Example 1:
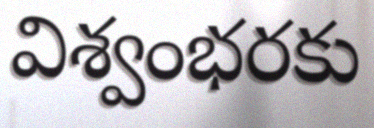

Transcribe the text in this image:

విశ్వంభరకు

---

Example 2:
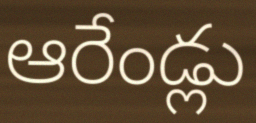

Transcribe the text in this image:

ఆరేండ్లు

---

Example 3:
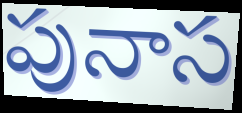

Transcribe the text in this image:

పునాస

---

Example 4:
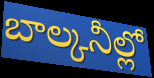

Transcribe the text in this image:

బాల్కనీల్లో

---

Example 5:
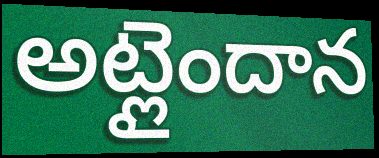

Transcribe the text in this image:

అట్లైందాన